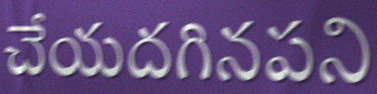
చేయదగినపని